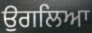
ਉਗਲਿਆ